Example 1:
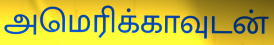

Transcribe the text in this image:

அமெரிக்காவுடன்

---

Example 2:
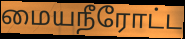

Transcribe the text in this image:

மையநீரோட்ட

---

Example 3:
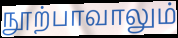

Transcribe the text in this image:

நூற்பாவாலும்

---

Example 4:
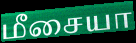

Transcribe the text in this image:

மீசையா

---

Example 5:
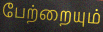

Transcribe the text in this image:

பேற்றையும்